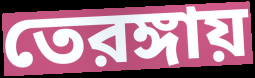
তেরঙ্গায়